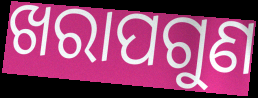
ଖରାପଗୁଣ